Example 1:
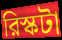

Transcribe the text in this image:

রিস্কটা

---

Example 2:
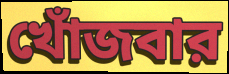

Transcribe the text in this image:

খোঁজবার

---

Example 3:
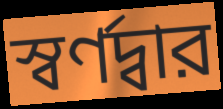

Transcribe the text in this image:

স্বর্ণদ্বার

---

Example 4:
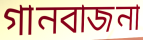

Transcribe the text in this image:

গানবাজনা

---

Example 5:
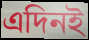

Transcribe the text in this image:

এদিনই